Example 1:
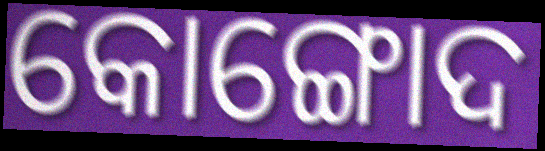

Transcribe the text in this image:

କୋଙ୍ଗୋଦ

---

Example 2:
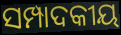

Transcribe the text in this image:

ସମ୍ପାଦକୀୟ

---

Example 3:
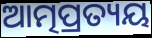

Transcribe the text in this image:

ଆତ୍ମପ୍ରତ୍ୟୟ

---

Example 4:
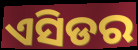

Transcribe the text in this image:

ଏସିଡର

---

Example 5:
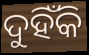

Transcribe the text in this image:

ଦୁହିଁକି